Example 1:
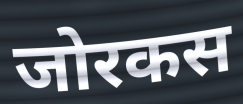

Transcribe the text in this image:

जोरकस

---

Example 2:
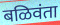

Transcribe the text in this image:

बळिवंता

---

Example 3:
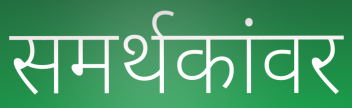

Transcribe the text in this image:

समर्थकांवर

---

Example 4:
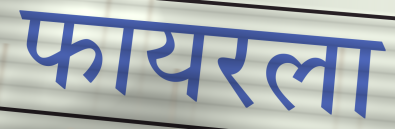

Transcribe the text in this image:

फायरला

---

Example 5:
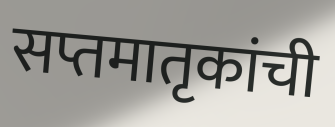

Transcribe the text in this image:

सप्तमातृकांची